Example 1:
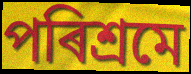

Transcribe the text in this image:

পৰিশ্ৰমে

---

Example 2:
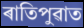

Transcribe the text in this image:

ৰাতিপুৱাত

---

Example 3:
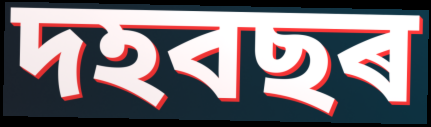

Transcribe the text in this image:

দহবছৰ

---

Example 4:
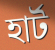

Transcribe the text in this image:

হাৰ্ট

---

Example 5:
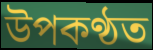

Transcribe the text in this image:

উপকণ্ঠত